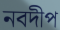
নবদীপ